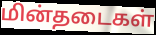
மின்தடைகள்